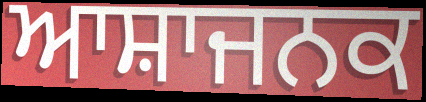
ਆਸ਼ਾਜਨਕ